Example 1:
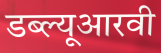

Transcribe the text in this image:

डब्ल्यूआरवी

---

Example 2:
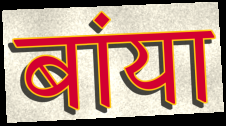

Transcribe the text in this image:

बांया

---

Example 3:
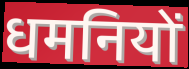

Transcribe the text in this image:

धमनियों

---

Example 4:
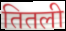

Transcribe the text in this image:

तितली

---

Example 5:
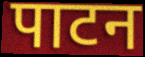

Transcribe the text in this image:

पाटन